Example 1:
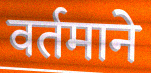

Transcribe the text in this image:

वर्तमाने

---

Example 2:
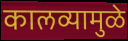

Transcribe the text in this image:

कालव्यामुळे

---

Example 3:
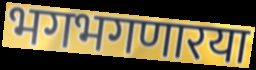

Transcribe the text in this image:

भगभगणारया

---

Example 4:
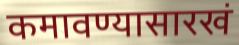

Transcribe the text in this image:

कमावण्यासारखं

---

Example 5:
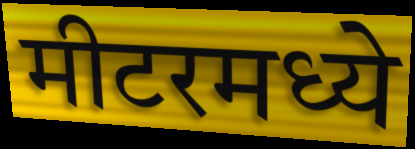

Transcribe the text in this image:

मीटरमध्ये